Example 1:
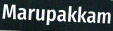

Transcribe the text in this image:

Marupakkam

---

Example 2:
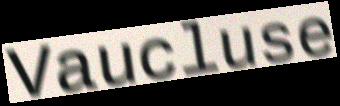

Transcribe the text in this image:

Vaucluse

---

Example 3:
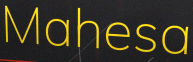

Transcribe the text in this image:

Mahesa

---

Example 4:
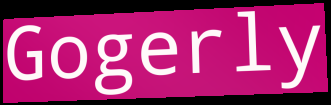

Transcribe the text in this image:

Gogerly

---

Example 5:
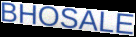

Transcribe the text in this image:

BHOSALE